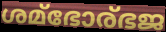
ശമ്ഭോര്ഭജ